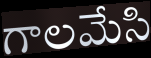
గాలమేసి